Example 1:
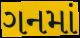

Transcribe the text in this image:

ગનમાં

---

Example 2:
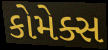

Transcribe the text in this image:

કોમેક્સ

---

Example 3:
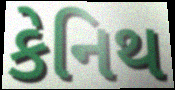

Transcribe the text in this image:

કેનિથ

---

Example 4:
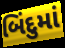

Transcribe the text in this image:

બિંદુમાં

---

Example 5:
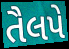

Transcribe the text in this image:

તૈલપે